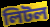
লিটল